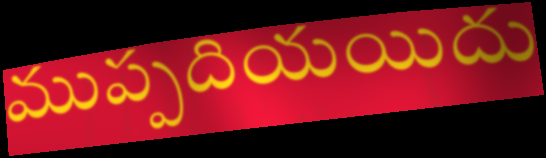
ముప్పదియయిదు